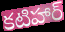
కటిహార్